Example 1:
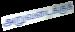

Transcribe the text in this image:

அறுவடைக்குக்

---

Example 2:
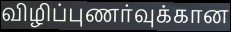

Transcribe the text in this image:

விழிப்புணர்வுக்கான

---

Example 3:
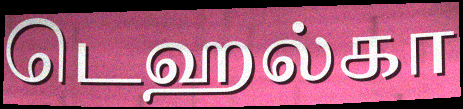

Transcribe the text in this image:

டெஹல்கா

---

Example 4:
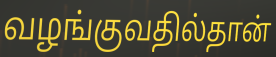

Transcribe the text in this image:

வழங்குவதில்தான்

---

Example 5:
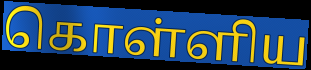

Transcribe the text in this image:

கொள்ளிய